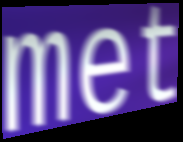
met